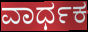
ವಾರ್ಧಕ